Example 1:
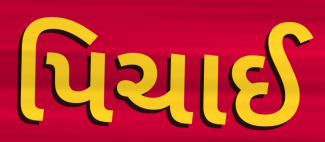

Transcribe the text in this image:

પિચાઈ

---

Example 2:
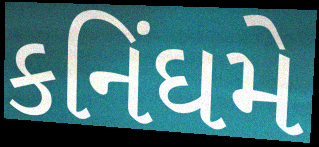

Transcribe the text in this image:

કનિંઘમે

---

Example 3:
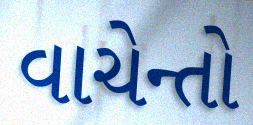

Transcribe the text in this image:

વાચેન્તો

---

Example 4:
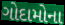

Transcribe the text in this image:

ગોદામોના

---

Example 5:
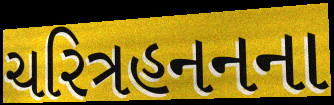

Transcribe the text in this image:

ચરિત્રહનનના